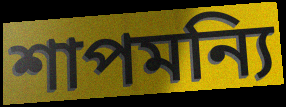
শাপমন্যি